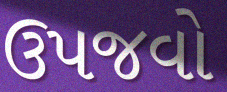
ઉપજવો